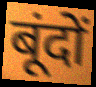
बूंदों